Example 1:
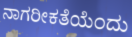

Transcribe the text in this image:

ನಾಗರೀಕತೆಯೆಂದು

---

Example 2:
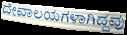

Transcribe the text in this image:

ದೇವಾಲಯಗಳಾಗಿದ್ದವು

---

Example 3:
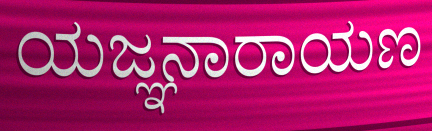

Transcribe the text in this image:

ಯಜ್ಞನಾರಾಯಣ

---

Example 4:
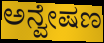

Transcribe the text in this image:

ಅನ್ವೇಷಣ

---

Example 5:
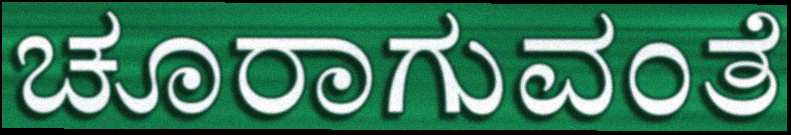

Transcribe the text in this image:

ಚೂರಾಗುವಂತೆ